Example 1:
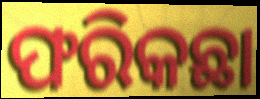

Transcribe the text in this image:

ଫରିକଛା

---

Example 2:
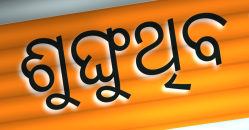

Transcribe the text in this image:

ଶୁଙ୍ଘୁଥିବ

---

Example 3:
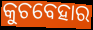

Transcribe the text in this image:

କୁଚବେହାର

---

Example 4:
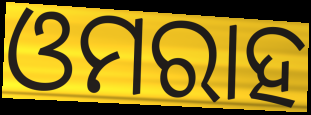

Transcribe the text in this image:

ଓମରାହ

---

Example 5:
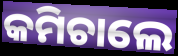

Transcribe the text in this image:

କମିଚାଲେ